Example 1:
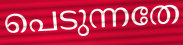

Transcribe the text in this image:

പെടുന്നതേ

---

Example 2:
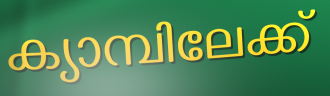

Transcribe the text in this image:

ക്യാമ്പിലേക്ക്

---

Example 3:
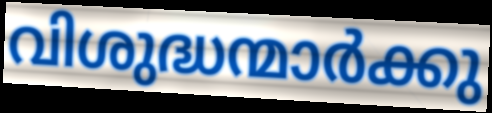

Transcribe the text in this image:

വിശുദ്ധന്മാർക്കു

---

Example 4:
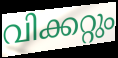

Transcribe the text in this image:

വിക്കറ്റും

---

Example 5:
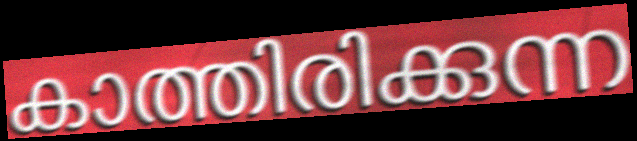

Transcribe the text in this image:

കാത്തിരിക്കുന്ന